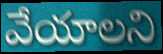
వేయాలని